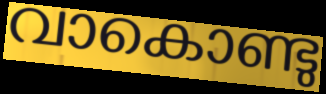
വാകൊണ്ടു